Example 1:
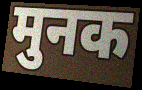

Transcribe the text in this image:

मुनक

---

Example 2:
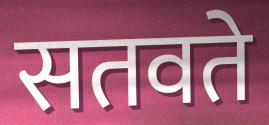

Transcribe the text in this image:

सतवते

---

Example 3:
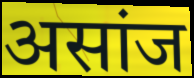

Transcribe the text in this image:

असांज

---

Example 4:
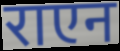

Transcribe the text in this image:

राएन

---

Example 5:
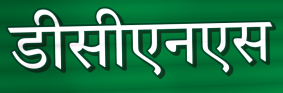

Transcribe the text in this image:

डीसीएनएस